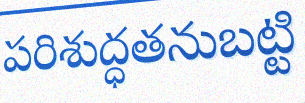
పరిశుద్ధతనుబట్టి